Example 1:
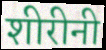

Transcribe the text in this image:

शीरीनी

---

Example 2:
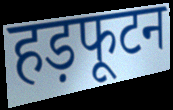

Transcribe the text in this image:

हड़फूटन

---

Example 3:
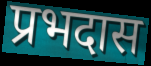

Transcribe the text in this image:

प्रभदास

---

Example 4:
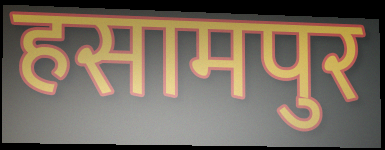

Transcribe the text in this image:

हसामपुर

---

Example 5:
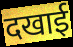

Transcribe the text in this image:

दखाई